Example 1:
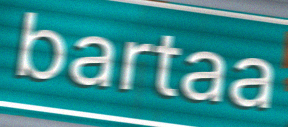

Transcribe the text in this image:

bartaa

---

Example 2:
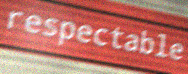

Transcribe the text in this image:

respectable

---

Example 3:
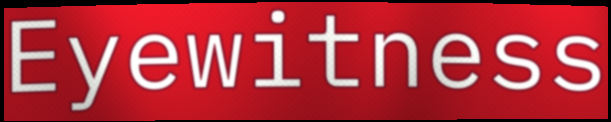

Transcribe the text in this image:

Eyewitness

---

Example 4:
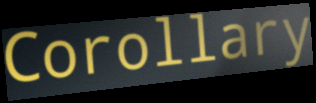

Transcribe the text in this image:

Corollary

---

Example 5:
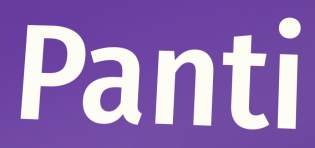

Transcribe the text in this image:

Panti